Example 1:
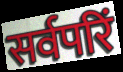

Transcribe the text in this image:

सर्वपरिं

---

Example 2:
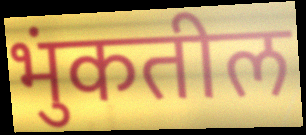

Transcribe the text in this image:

भुंकतील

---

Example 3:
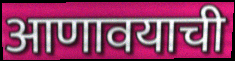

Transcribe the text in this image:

आणावयाची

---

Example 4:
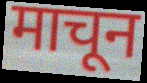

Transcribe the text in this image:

माचून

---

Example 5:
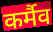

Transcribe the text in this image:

कर्मैव